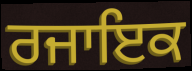
ਰਜਾਇਕ